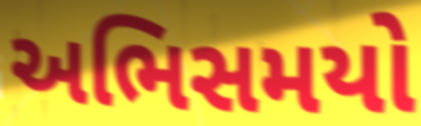
અભિસમયો